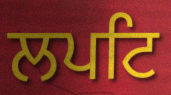
ਲਪਟਿ